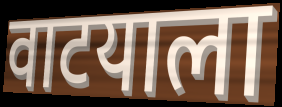
वाटयाला